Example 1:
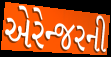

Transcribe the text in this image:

એરેન્જરની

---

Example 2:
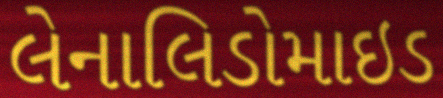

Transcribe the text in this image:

લેનાલિડોમાઇડ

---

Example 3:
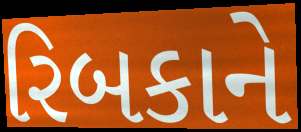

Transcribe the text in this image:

રિબકાને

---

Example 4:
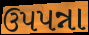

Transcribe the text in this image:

ઉપપન્ના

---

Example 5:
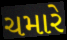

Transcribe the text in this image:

ચમારે